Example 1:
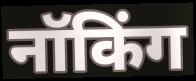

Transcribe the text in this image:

नॉकिंग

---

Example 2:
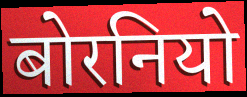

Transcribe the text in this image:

बोरनियो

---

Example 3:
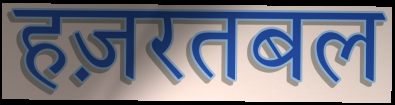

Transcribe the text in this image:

हज़रतबल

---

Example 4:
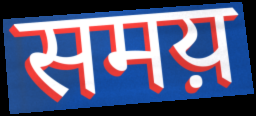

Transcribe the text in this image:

समय़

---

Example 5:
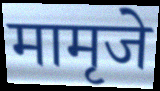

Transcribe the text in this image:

मामृजे